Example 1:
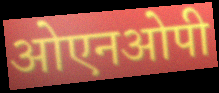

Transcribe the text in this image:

ओएनओपी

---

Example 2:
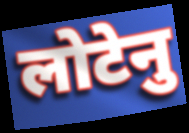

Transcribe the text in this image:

लोटेनु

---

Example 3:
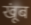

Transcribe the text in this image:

खूंब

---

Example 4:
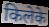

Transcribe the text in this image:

किलेके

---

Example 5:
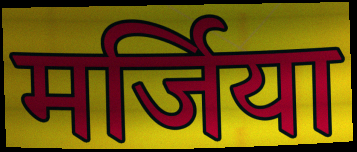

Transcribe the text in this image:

मर्जिया